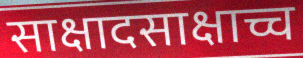
साक्षादसाक्षाच्च